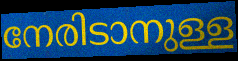
നേരിടാനുള്ള